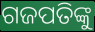
ଗଜପତିଙ୍କୁ